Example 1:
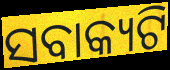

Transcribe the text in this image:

ସବାକ୍ୟଟି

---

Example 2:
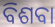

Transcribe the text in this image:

ବିଶବା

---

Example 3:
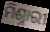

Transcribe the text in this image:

ମିଶ୍ନାରୀ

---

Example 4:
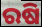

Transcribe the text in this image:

ରଷି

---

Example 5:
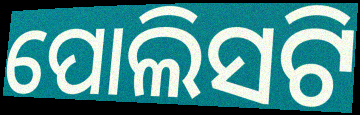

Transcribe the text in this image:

ପୋଲିସଟି